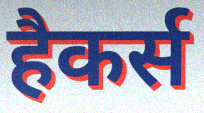
हैकर्स